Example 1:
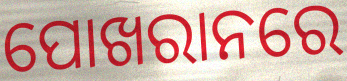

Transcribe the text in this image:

ପୋଖରାନରେ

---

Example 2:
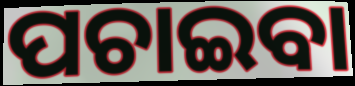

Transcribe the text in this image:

ପଚାଇବା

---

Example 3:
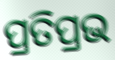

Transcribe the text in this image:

ପ୍ରତିପ୍ରଭ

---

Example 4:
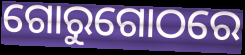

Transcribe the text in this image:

ଗୋରୁଗୋଠରେ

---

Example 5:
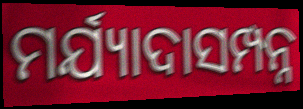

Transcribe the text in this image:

ମର୍ଯ୍ୟାଦାସମ୍ପନ୍ନ